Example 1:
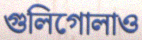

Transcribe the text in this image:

গুলিগোলাও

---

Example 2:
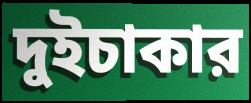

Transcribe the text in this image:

দুইচাকার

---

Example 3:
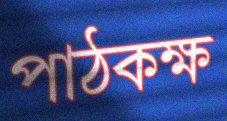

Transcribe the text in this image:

পাঠকক্ষ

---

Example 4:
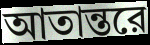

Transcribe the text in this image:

আতান্তরে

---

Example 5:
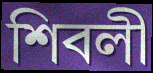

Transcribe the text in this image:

শিবলী